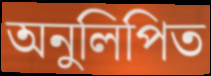
অনুলিপিত